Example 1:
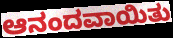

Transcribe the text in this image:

ಆನಂದವಾಯಿತು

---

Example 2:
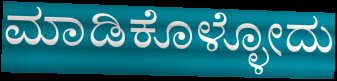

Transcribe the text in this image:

ಮಾಡಿಕೊಳ್ಳೋದು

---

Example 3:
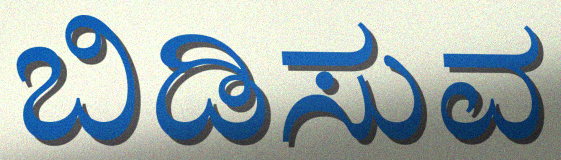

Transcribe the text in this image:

ಬಿಡಿಸುವ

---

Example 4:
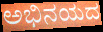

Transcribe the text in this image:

ಅಭಿನಯದ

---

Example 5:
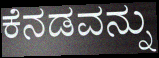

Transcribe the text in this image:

ಕೆನಡವನ್ನು